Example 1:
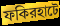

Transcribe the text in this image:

ফকিরহাটে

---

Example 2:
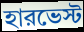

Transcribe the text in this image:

হারভেস্ট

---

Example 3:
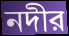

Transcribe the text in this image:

নদীর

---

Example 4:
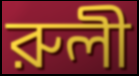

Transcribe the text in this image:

রুলী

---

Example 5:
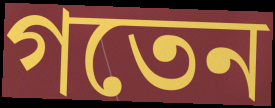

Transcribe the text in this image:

গতেন